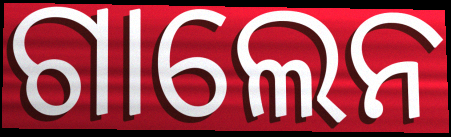
ଗାଲେନ